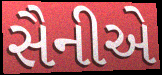
સૈનીએ